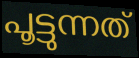
പൂട്ടുന്നത്